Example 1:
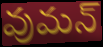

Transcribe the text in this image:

వుమన్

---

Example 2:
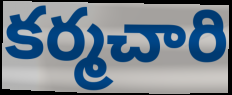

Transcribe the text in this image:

కర్మచారి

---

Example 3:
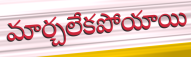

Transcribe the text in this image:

మార్చలేకపోయాయి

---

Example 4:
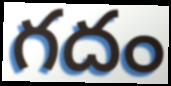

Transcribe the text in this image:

గదం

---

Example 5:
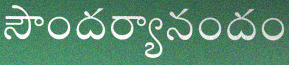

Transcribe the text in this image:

సౌందర్యానందం